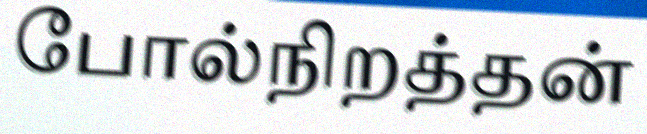
போல்நிறத்தன்